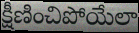
క్షీణించిపోయేలా